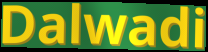
Dalwadi